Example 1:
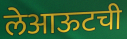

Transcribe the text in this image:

लेआऊटची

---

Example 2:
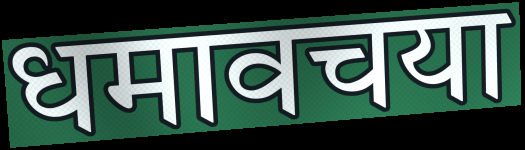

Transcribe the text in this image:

धमावचया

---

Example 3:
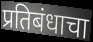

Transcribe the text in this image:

प्रतिबंधाचा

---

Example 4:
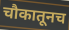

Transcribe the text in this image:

चौकातूनच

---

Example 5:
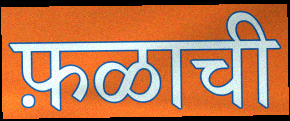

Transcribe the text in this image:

फ़ळाची